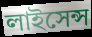
লাইসেন্স